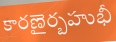
కారణైర్బహుభీ